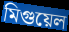
মিগুয়েল